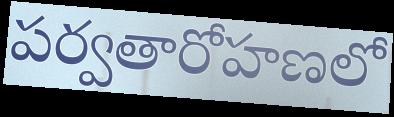
పర్వతారోహణలో